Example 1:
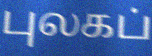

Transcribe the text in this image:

புலகப்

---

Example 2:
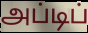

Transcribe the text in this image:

அப்டிப்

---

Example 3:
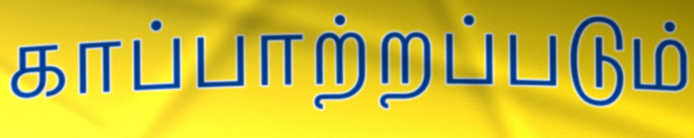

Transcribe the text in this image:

காப்பாற்றப்படும்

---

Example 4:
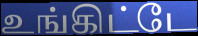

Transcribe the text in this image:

உங்கிட்டே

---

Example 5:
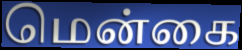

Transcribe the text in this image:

மென்கை